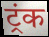
ट्रंक